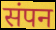
संपन